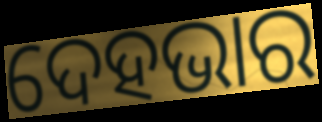
ଦେହଭାର